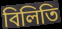
বিলিতি